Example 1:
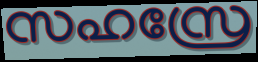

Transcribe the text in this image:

സഹസ്രേ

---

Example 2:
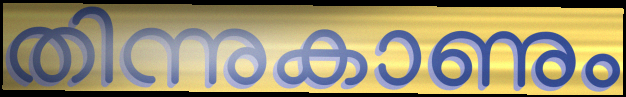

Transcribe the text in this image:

തിന്നുകാണും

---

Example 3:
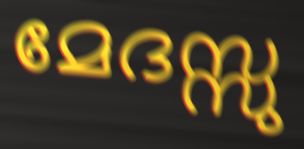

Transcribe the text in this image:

മേദസ്സു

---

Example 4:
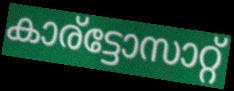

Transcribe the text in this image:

കാര്ട്ടോസാറ്റ്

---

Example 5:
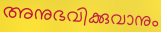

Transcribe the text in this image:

അനുഭവിക്കുവാനും